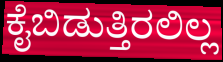
ಕೈಬಿಡುತ್ತಿರಲಿಲ್ಲ